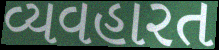
વ્યવહારત